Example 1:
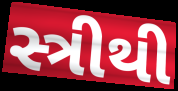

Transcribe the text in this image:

સ્ત્રીથી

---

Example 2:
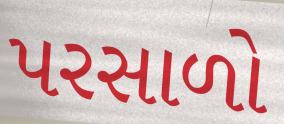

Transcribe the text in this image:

પરસાળો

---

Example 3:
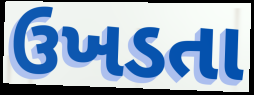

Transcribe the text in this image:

ઉખડતા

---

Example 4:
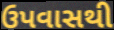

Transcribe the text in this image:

ઉપવાસથી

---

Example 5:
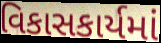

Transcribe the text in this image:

વિકાસકાર્યમાં